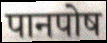
पानपोष